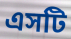
এসটি